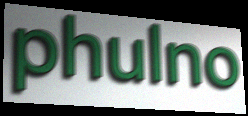
phulno